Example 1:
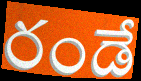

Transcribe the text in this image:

రండే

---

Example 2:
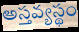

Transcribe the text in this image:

అస్తవ్యస్థం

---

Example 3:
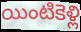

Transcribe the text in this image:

యింటికెళ్లి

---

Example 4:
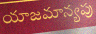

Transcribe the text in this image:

యాజమాన్యపు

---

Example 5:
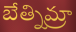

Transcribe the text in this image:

బేత్నిమ్రా